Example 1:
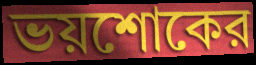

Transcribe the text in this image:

ভয়শোকের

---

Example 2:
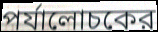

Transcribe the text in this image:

পর্যালোচকের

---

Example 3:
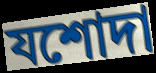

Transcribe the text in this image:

যশোদা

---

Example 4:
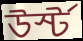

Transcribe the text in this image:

উর্স্ট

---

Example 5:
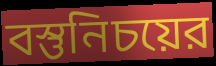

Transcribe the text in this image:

বস্তুনিচয়ের